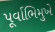
પૂર્વાભિમુખે